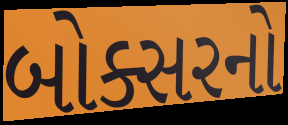
બોક્સરનો